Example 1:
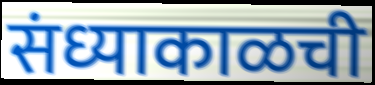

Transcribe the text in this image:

संध्याकाळची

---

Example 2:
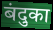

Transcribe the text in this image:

बंदुका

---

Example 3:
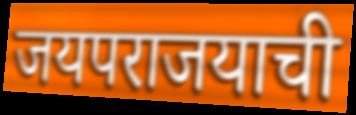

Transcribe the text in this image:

जयपराजयाची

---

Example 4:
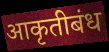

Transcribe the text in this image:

आकृतीबंध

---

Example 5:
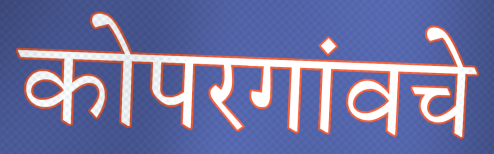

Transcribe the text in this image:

कोपरगांवचे